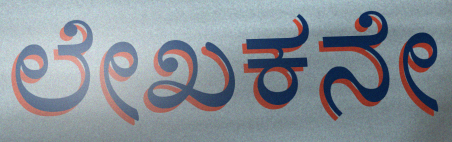
ಲೇಖಕನೇ